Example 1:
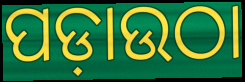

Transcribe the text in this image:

ପଡ଼ାଉଠା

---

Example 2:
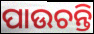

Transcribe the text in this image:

ପାଉଚନ୍ତି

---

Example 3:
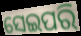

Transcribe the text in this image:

ସେଇପରି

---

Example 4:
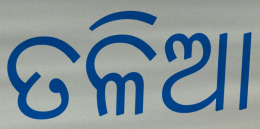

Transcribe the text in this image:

ତଳିଆ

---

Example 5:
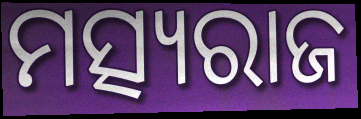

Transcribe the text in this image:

ମତ୍ସ୍ୟରାଜ